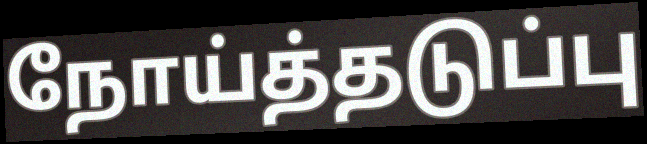
நோய்த்தடுப்பு